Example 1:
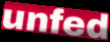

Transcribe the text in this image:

unfed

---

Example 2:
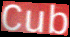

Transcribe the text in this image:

Cub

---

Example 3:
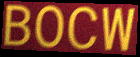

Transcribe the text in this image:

BOCW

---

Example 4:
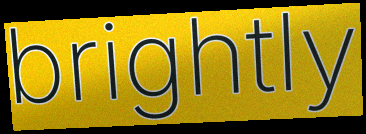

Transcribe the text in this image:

brightly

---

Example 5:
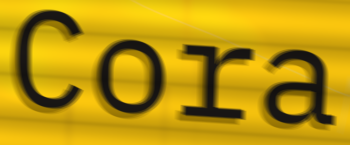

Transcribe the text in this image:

Cora